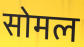
सोमल